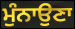
ਮੁੰਨਾਉਣਾ